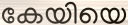
കേയിയെ